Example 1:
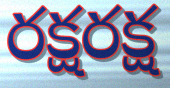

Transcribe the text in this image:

రక్షరక్ష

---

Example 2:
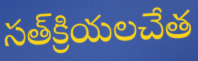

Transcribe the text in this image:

సత్‌క్రియలచేత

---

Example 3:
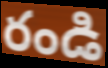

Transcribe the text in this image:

రండి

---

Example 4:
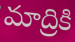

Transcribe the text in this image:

మాద్రికి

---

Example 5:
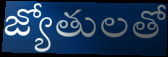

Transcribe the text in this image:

జ్యోతులతో